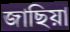
জাছিয়া